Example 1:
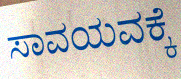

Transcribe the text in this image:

ಸಾವಯವಕ್ಕೆ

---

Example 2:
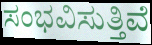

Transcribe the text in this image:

ಸಂಭವಿಸುತ್ತಿವೆ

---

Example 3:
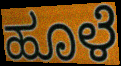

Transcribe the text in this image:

ಹೂಳೆ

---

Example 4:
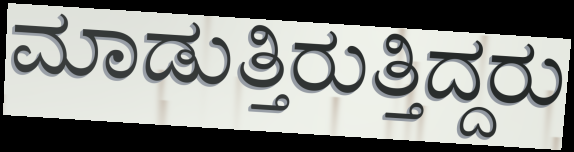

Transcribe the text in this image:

ಮಾಡುತ್ತಿರುತ್ತಿದ್ದರು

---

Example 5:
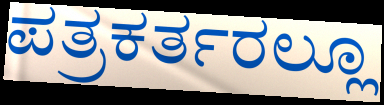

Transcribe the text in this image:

ಪತ್ರಕರ್ತರಲ್ಲೂ